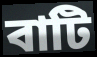
বাটি